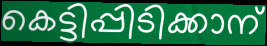
കെട്ടിപ്പിടിക്കാന്